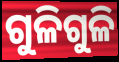
ଗୁଳିଗୁଳି